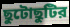
ছুটোছুটির